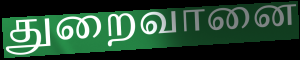
துறைவானை